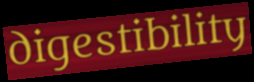
digestibility